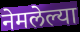
नेमलेल्या